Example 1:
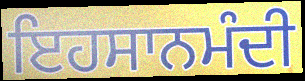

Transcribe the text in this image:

ਇਹਸਾਨਮੰਦੀ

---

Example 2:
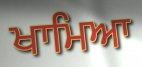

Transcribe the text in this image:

ਖਾਮਿਆ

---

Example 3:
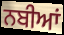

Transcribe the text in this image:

ਨਬੀਆਂ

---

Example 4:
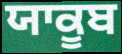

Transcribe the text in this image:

ਯਾਕੂਬ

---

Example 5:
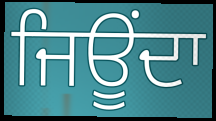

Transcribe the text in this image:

ਜਿਊਂਦਾ